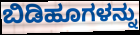
ಬಿಡಿಹೂಗಳನ್ನು